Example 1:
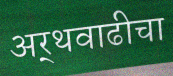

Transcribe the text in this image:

अर्थवाढीचा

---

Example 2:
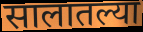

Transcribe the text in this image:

सालातल्या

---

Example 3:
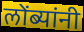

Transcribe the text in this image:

लोंब्यांनी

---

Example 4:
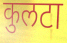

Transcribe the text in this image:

कुलटा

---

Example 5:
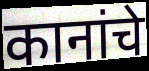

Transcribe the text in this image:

कानांचे